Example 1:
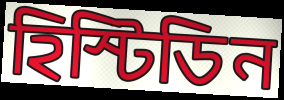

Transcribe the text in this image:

হিস্টিডিন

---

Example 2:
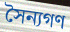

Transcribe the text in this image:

সৈন্যগণ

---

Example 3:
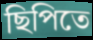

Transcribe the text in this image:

ছিপিতে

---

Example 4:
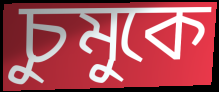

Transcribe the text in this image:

চুমুকে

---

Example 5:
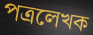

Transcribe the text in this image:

পত্রলেখক